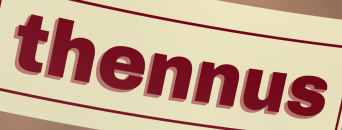
thennus